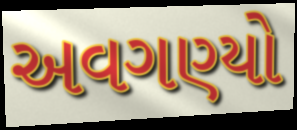
અવગણ્યો